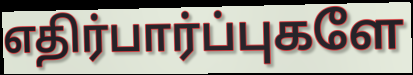
எதிர்பார்ப்புகளே